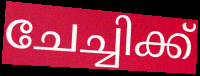
ചേച്ചിക്ക്